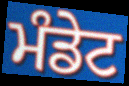
ਮੰਡੇਟ